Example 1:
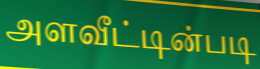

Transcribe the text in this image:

அளவீட்டின்படி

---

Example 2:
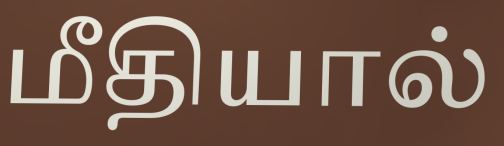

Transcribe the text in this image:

மீதியால்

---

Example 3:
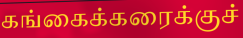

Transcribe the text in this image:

கங்கைக்கரைக்குச்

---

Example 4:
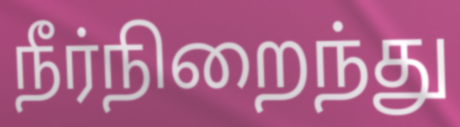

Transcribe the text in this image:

நீர்நிறைந்து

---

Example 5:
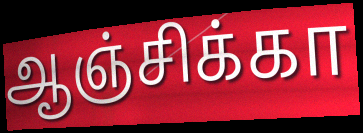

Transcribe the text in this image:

ஆஞ்சிக்கா